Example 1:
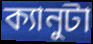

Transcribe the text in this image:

ক্যানুটা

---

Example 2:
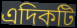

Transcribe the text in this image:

এদিকটি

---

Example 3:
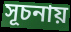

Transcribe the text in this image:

সূচনায়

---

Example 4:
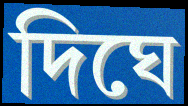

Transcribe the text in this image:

দিঘে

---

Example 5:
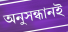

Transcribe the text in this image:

অনুসন্ধানই